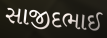
સાજીદભાઈ